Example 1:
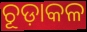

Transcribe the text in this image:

ଚୂଡ଼ାକଳ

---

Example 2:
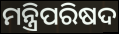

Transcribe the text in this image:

ମନ୍ତ୍ରିପରିଷଦ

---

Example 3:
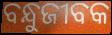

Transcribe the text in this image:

ବନ୍ଧୁଜୀବକ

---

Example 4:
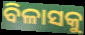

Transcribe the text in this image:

ବିଳାସକୁ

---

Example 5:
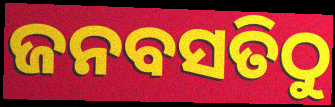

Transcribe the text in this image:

ଜନବସତିଠୁ